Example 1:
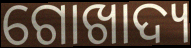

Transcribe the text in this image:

ଗୋଖାଦ୍ୟ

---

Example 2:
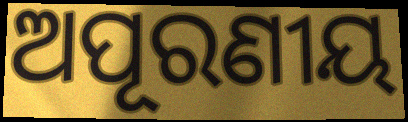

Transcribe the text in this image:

ଅପୂରଣୀୟ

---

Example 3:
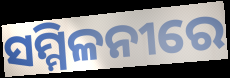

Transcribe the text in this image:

ସମ୍ମିଳନୀରେ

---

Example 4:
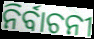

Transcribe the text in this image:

ନିର୍ବାଚନୀ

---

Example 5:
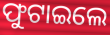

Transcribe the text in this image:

ଫୁଟାଇଲେ